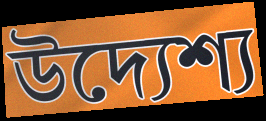
উদ্যেশ্য